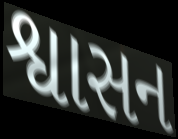
શ્વાસન